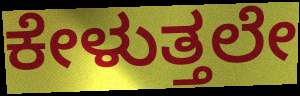
ಕೇಳುತ್ತಲೇ